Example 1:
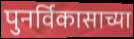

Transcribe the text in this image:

पुनर्विकासाच्या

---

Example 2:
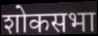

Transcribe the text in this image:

शोकसभा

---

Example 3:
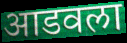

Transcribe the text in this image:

आडवला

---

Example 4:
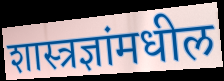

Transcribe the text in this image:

शास्त्रज्ञांमधील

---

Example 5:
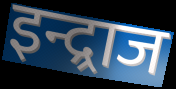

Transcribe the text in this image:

इन्द्र्राज